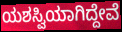
ಯಶಸ್ವಿಯಾಗಿದ್ದೇವೆ